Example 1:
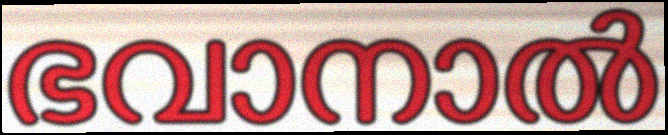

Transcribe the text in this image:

ഭവാനാൽ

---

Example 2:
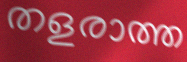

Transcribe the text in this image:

തളരാത്ത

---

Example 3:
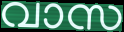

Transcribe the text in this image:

വാസ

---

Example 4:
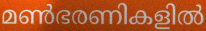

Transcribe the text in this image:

മൺഭരണികളിൽ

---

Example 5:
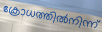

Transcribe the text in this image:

ക്രോധത്തിൽനിന്ന്